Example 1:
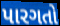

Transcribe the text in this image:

પારગતો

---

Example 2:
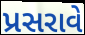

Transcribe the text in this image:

પ્રસરાવે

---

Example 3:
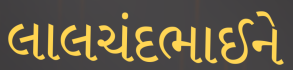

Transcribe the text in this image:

લાલચંદભાઈને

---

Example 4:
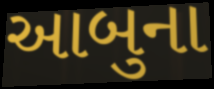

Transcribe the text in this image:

આબુના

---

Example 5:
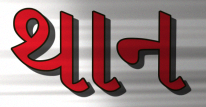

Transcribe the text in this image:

થાન